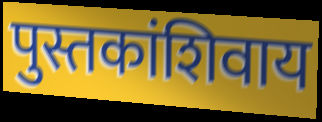
पुस्तकांशिवाय